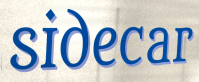
sidecar